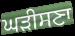
ਘੜੀਸਣਾ